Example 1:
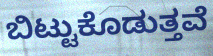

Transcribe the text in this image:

ಬಿಟ್ಟುಕೊಡುತ್ತವೆ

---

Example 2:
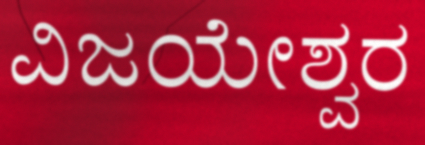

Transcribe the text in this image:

ವಿಜಯೇಶ್ವರ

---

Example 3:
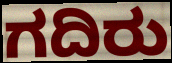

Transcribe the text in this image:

ಗದಿರು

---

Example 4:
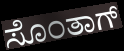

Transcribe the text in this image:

ಸೊಂತಾಗ್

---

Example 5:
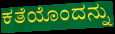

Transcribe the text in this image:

ಕತೆಯೊಂದನ್ನು